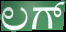
ಲಗ್